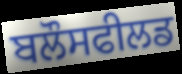
ਬਲੌਸਫੀਲਡ